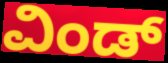
ವಿಂಡ್